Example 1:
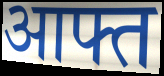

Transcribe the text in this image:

आफ्त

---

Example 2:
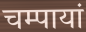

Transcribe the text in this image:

चम्पायां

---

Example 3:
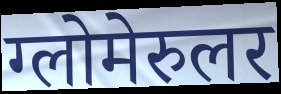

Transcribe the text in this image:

ग्लोमेरुलर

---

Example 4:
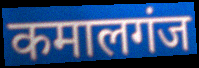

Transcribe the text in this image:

कमालगंज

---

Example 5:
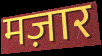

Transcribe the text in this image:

मज़ार